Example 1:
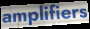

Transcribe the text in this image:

amplifiers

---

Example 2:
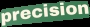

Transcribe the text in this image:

precision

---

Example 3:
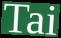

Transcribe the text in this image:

Tai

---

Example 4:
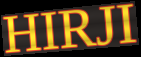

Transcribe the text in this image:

HIRJI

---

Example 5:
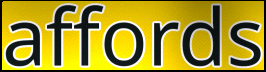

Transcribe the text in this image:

affords